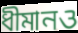
ধীমানও